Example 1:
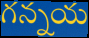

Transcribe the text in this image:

గన్నయ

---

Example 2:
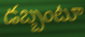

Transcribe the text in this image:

డబ్బంటూ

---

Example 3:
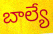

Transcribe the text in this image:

బాల్యే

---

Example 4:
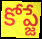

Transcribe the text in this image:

కోప్జే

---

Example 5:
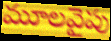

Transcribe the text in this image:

మూలవైపు